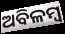
ଅବିଳମ୍ବ